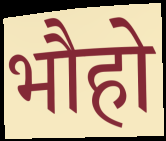
भौहो